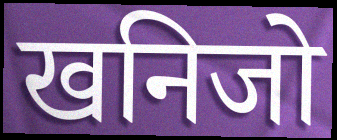
खनिजो